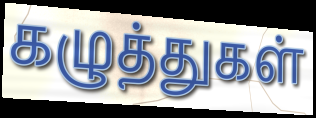
கழுத்துகள்